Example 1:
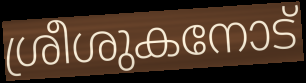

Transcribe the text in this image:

ശ്രീശുകനോട്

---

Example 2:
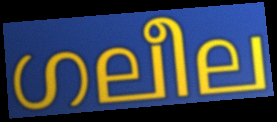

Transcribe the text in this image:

ഗലീല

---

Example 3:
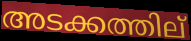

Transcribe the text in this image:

അടക്കത്തില്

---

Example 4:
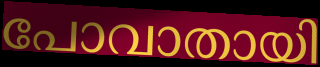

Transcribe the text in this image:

പോവാതായി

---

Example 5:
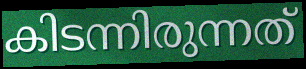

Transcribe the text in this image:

കിടന്നിരുന്നത്